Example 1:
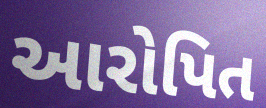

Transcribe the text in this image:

આરોપિત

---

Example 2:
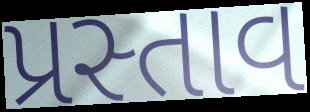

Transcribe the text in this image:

પ્રસ્તાવ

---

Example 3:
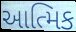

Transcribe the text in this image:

આત્મિક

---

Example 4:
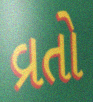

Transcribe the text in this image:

વ્રતો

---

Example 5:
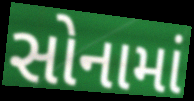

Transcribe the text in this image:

સોનામાં